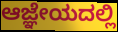
ಆಜ್ಞೇಯದಲ್ಲಿ